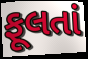
ફૂલતાં